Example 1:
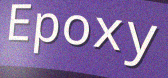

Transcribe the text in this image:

Epoxy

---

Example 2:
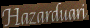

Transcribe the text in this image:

Hazarduari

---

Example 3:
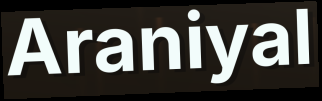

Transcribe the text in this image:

Araniyal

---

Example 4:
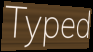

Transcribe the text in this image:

Typed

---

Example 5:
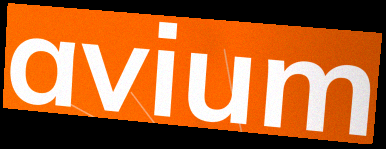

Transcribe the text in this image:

avium